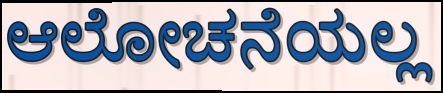
ಆಲೋಚನೆಯಲ್ಲ